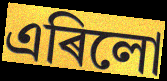
এৰিলো